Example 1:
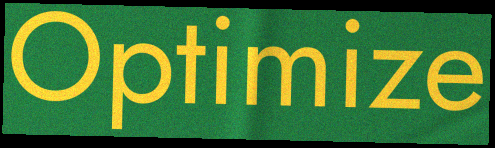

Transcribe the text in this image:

Optimize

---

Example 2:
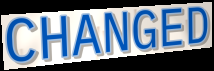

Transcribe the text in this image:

CHANGED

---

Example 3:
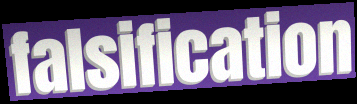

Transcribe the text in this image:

falsification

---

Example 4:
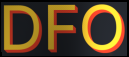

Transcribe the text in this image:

DFO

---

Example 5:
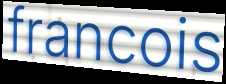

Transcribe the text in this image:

francois